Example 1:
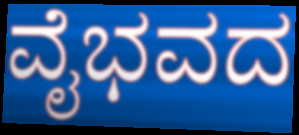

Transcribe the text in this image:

ವೈಭವದ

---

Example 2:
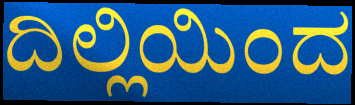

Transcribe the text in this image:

ದಿಲ್ಲಿಯಿಂದ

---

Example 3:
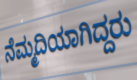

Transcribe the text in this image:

ನೆಮ್ಮದಿಯಾಗಿದ್ದರು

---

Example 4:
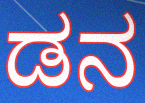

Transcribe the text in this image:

ಡನ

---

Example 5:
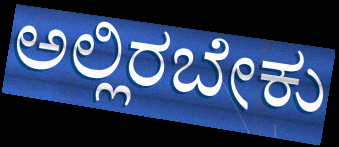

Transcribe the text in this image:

ಅಲ್ಲಿರಬೇಕು